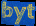
byt